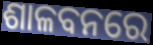
ଶାଳବନରେ